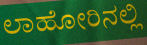
ಲಾಹೋರಿನಲ್ಲಿ